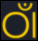
ଠାଁ